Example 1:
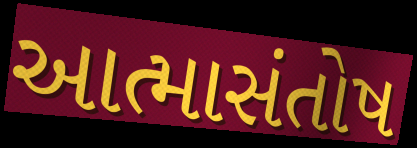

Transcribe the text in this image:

આત્માસંતોષ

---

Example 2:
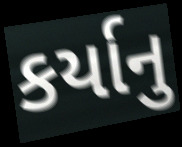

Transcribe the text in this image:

કર્યાનુ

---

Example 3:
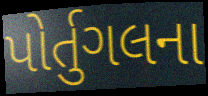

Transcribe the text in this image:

પોર્તુગલના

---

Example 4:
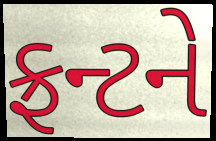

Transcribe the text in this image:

ફ્રન્ટને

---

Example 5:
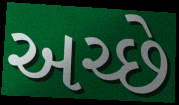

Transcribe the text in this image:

અચ્છે